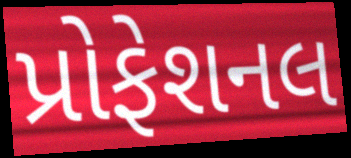
પ્રોફેશનલ